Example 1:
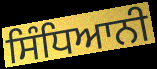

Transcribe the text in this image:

ਸਿੰਧਿਆਨੀ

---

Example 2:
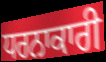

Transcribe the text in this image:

ਧਰਨਾਕਾਰੀ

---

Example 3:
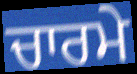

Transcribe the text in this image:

ਚਾਰਮੇ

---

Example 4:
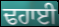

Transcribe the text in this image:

ਢਹਾਈ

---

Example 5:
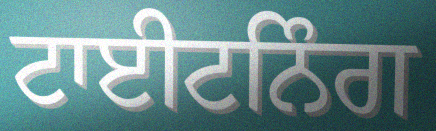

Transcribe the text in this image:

ਟਾਈਟਨਿੰਗ